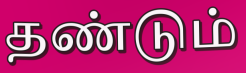
தண்டும்